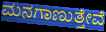
ಮನಗಾಣುತ್ತೇವೆ